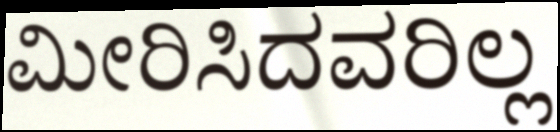
ಮೀರಿಸಿದವರಿಲ್ಲ